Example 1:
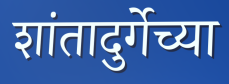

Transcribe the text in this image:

शांतादुर्गेच्या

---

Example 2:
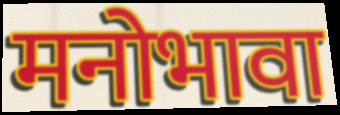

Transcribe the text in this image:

मनोभावा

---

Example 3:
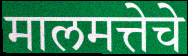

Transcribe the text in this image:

मालमत्तेचे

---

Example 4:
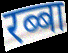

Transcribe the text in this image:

रब्बा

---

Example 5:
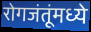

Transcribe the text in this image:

रोगजंतूंमध्ये